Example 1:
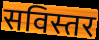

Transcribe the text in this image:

सविस्तर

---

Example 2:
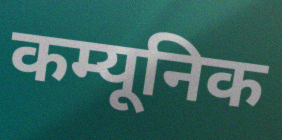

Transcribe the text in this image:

कम्यूनिक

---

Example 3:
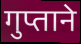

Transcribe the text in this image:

गुप्ताने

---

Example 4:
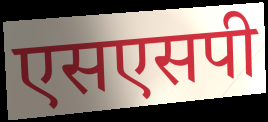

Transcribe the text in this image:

एसएसपी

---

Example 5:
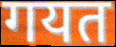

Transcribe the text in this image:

गयत